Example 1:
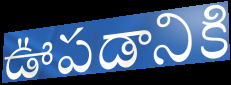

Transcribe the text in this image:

ఊపడానికి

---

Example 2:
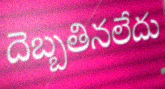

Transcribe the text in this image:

దెబ్బతినలేదు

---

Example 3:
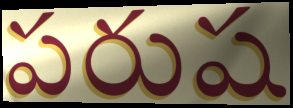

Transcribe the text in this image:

పరుష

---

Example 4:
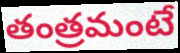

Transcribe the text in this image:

తంత్రమంటే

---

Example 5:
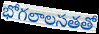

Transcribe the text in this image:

భోగలాలసతతో